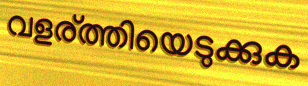
വളര്ത്തിയെടുക്കുക